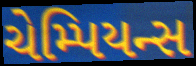
ચેમ્પિયન્સ